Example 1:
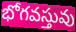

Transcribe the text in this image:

భోగవస్తువు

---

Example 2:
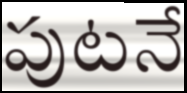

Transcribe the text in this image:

పుటనే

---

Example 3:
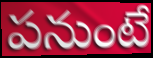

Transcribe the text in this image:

పనుంటే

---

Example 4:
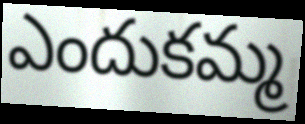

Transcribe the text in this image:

ఎందుకమ్మ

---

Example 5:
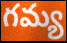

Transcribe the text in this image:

గమ్య